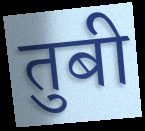
तुबी